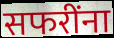
सफरींना